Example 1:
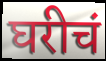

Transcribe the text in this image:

घरीचं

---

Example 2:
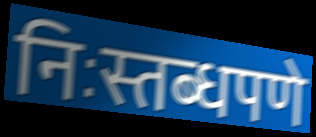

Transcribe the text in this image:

निःस्तब्धपणे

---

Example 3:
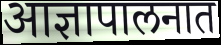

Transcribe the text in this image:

आज्ञापालनात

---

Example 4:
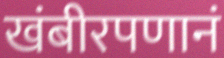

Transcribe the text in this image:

खंबीरपणानं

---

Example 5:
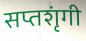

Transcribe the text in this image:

सप्तशृंगी